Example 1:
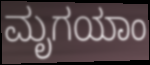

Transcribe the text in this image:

ಮೃಗಯಾಂ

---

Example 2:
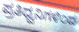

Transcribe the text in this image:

ಪ್ರತಿಧ್ವನಿಗಳಿಂದ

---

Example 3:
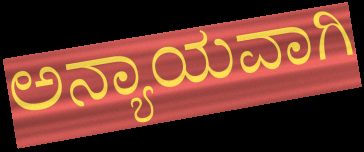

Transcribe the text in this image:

ಅನ್ಯಾಯವಾಗಿ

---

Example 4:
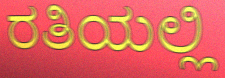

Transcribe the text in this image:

ರತಿಯಲ್ಲಿ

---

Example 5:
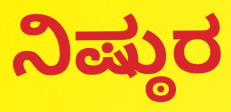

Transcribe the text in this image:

ನಿಷ್ಠುರ